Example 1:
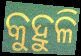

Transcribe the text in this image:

କୁହୁଳି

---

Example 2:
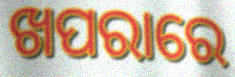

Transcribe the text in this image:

ଖପରାରେ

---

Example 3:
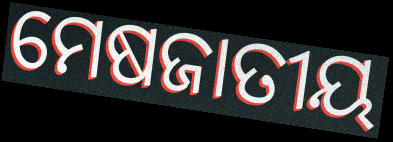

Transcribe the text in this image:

ମେଷଜାତୀୟ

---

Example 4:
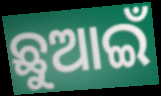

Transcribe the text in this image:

ଛୁଆଇଁ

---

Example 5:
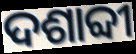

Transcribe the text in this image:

ଦଶାବ୍ଦୀ